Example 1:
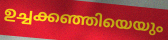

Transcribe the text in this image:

ഉച്ചക്കഞ്ഞിയെയും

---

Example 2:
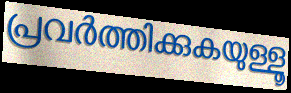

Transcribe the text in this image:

പ്രവർത്തിക്കുകയുള്ളൂ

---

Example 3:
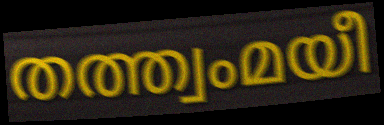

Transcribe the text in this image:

തത്ത്വംമയീ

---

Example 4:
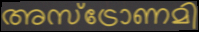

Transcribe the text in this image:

അസ്ട്രോണമി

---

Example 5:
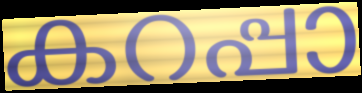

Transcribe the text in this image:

കറപ്പാ